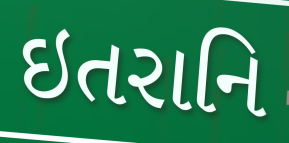
ઇતરાનિ